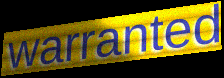
warranted